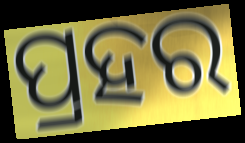
ପ୍ରହର